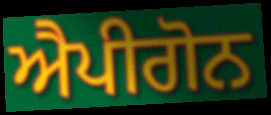
ਐਪੀਗੋਨ